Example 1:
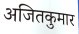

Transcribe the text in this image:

अजितकुमार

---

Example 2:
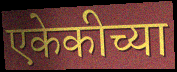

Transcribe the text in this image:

एकेकीच्या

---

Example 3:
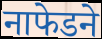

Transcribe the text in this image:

नाफेडने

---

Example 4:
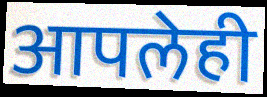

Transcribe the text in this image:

आपलेही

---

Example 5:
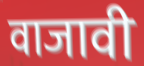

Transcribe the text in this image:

वाजावी